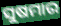
ସୁଷମାର